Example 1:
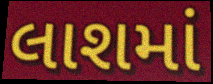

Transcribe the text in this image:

લાશમાં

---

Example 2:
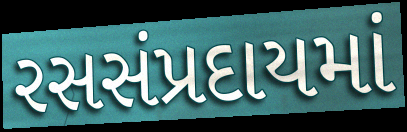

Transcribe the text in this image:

રસસંપ્રદાયમાં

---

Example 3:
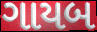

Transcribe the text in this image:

ગાયબ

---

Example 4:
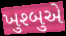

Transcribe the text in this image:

ખુશ્બુએ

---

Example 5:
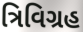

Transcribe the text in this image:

ત્રિવિગ્રહ